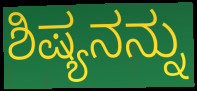
ಶಿಷ್ಯನನ್ನು